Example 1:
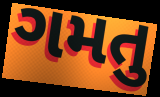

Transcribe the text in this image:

ગમતુ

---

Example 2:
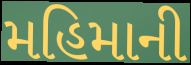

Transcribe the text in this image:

મહિમાની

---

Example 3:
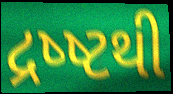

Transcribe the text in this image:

દ્રષ્ષ્ટથી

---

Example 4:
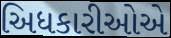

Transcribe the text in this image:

અિધકારીઓએ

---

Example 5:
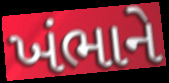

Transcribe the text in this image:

ખંભાને